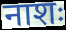
नाशः